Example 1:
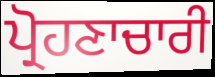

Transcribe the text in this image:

ਪ੍ਰੋਹਣਾਚਾਰੀ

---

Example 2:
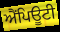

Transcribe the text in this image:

ਐਂਪਿਊਟੀ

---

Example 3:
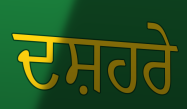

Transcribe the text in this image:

ਦਸ਼ਹਰੇ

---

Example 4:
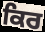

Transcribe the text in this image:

ਕਿਰ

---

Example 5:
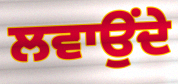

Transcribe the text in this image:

ਲਵਾਉਂਦੇ